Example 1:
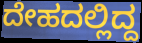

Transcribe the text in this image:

ದೇಹದಲ್ಲಿದ್ದ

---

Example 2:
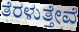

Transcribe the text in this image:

ತೆರಳುತ್ತೇವೆ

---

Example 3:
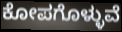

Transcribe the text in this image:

ಕೋಪಗೊಳ್ಳುವೆ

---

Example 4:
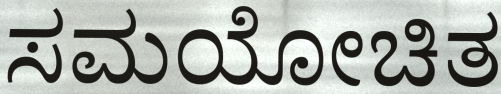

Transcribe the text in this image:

ಸಮಯೋಚಿತ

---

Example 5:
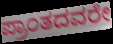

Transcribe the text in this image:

ಪ್ರಾಂತದವರೇ